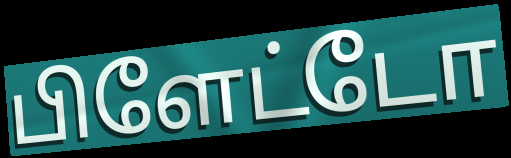
பிளேட்டோ